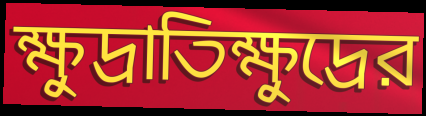
ক্ষুদ্রাতিক্ষুদ্রের